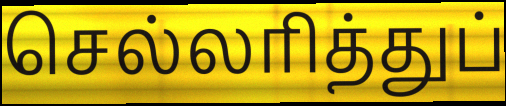
செல்லரித்துப்